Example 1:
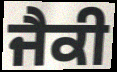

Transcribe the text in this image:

ਜੈਕੀ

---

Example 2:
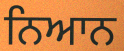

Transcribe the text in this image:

ਨਿਆਨ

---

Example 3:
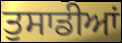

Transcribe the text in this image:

ਤੁਸਾਡੀਆਂ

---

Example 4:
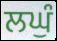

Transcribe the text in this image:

ਲਘੁੰ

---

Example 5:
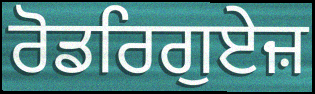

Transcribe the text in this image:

ਰੋਡਰਿਗੁਏਜ਼